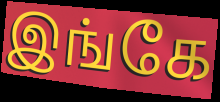
இங்கே